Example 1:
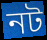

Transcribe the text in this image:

নট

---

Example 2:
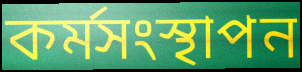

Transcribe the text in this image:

কৰ্মসংস্থাপন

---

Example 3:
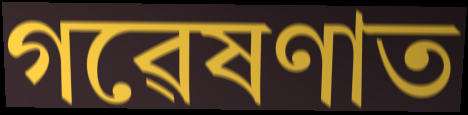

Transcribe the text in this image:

গৱেষণাত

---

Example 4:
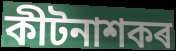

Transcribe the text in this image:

কীটনাশকৰ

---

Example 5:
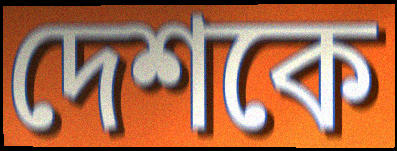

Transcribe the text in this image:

দেশকে